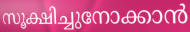
സൂക്ഷിച്ചുനോക്കാൻ